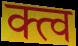
क्त्व